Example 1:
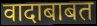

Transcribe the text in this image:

वादाबाबत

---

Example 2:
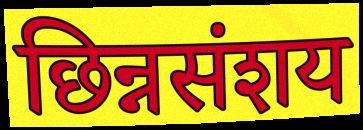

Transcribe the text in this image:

छिन्नसंशय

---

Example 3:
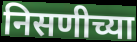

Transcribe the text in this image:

निसणीच्या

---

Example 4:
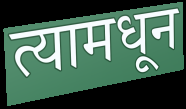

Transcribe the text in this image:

त्यामधून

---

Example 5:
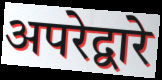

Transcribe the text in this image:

अपरेद्वारे